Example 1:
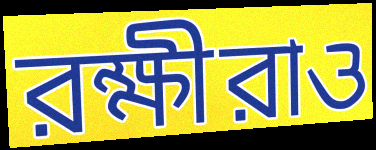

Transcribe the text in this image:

রক্ষীরাও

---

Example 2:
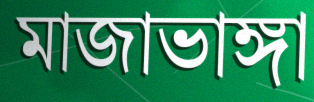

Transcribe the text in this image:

মাজাভাঙ্গা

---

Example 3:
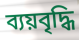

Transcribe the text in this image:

ব্যয়বৃদ্ধি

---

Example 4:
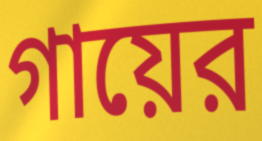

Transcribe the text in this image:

গায়ের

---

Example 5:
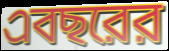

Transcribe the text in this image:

এবছরের